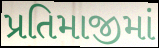
પ્રતિમાજીમાં